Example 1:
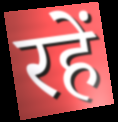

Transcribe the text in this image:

रहें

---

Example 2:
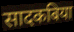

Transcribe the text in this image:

सादकबिया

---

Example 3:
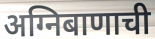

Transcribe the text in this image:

अग्निबाणाची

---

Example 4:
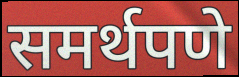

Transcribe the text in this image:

समर्थपणे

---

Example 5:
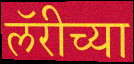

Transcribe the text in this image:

लॅरीच्या